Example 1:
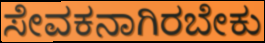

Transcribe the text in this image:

ಸೇವಕನಾಗಿರಬೇಕು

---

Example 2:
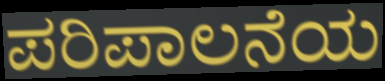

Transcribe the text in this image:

ಪರಿಪಾಲನೆಯ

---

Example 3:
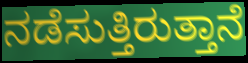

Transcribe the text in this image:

ನಡೆಸುತ್ತಿರುತ್ತಾನೆ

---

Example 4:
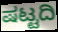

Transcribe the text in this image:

ಷಟ್ಟದಿ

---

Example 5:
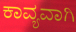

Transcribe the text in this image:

ಕಾವ್ಯವಾಗಿ